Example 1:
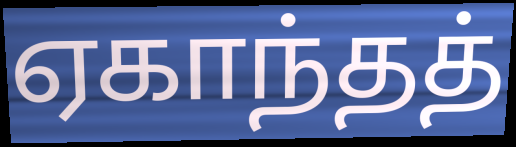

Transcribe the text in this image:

ஏகாந்தத்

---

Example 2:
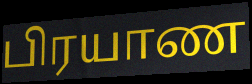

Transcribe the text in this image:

பிரயாண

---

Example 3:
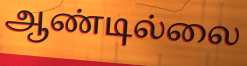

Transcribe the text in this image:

ஆண்டில்லை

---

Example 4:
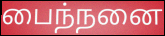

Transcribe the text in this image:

பைந்நனை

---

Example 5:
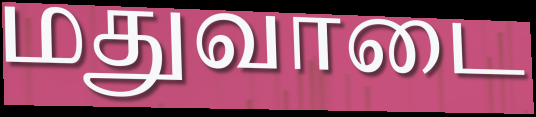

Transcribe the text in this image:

மதுவாடை